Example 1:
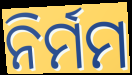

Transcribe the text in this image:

ନିର୍ମମ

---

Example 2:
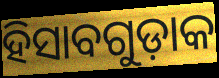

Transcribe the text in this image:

ହିସାବଗୁଡ଼ାକ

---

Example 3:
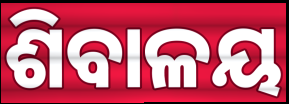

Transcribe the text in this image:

ଶିବାଳୟ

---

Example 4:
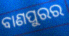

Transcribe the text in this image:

ବାଣପୁରର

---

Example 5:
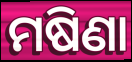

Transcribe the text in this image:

ମଷିଣା